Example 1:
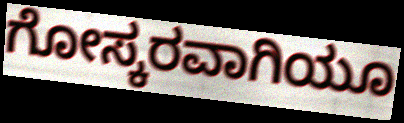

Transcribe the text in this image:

ಗೋಸ್ಕರವಾಗಿಯೂ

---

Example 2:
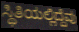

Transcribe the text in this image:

ಸ್ಥಿತಿಯಲ್ಲಿದ್ದೆವು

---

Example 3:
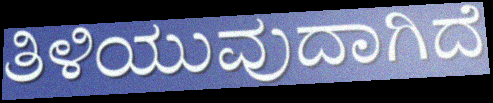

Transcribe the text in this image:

ತಿಳಿಯುವುದಾಗಿದೆ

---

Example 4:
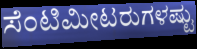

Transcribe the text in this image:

ಸೆಂಟಿಮೀಟರುಗಳಷ್ಟು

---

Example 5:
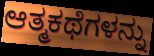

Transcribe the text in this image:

ಆತ್ಮಕಥೆಗಳನ್ನು